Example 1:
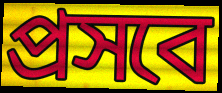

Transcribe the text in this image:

প্রসবে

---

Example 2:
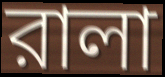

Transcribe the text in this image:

রালা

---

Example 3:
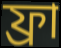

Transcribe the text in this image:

ফ্রা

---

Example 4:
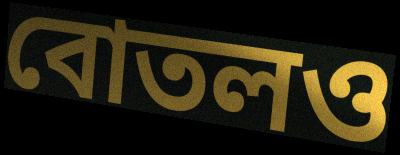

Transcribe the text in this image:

বোতলও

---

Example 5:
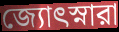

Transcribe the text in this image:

জ্যোৎস্নারা